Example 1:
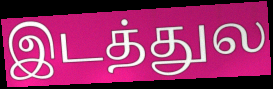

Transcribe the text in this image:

இடத்துல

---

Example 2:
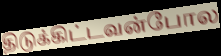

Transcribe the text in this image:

திடுக்கிட்டவன்போல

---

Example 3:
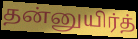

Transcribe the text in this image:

தன்னுயிர்த்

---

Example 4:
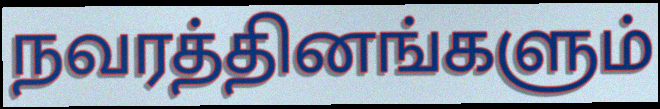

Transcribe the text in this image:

நவரத்தினங்களும்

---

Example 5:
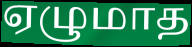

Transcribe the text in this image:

ஏழுமாத